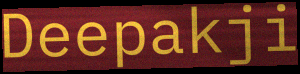
Deepakji